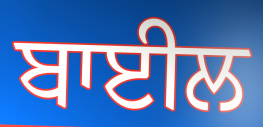
ਬਾਈਲ